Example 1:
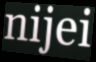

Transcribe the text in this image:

nijei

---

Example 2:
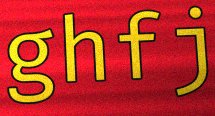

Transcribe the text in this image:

ghfj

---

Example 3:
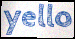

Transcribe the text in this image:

yello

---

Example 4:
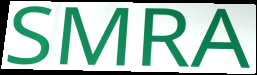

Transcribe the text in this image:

SMRA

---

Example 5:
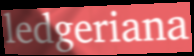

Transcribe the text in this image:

ledgeriana